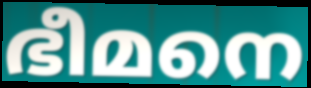
ഭീമനെ